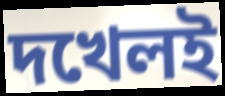
দখেলই